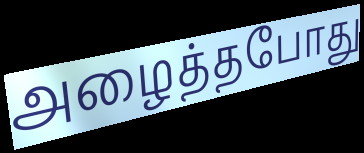
அழைத்தபோது